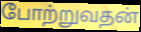
போற்றுவதன்